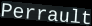
Perrault